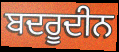
ਬਦਰੂਦੀਨ